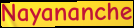
Nayananche